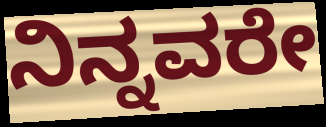
ನಿನ್ನವರೇ